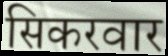
सिकरवार